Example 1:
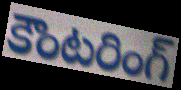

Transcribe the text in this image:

కౌంటరింగ్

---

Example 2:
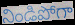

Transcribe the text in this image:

నిండిపోగా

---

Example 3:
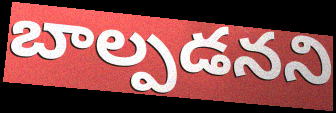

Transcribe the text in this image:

బాల్పడనని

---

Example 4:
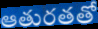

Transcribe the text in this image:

ఆతురతతో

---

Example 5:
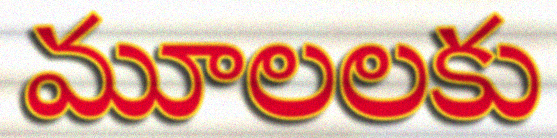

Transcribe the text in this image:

మూలలకు